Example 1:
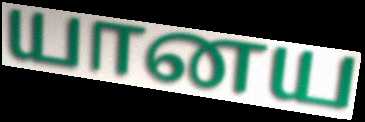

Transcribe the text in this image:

யானய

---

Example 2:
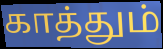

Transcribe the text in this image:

காத்தும்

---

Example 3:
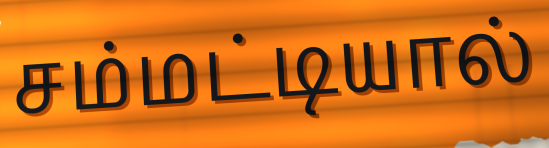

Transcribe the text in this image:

சம்மட்டியால்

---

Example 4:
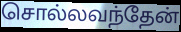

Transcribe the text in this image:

சொல்லவந்தேன்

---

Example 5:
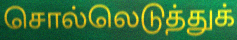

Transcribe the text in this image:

சொல்லெடுத்துக்